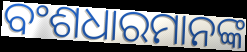
ବଂଶଧାରମାନଙ୍କ